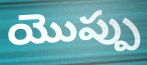
యొప్పు